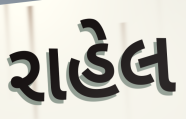
રાહેલ